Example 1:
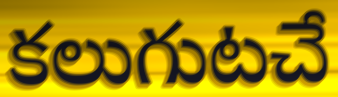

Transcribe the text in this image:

కలుగుటచే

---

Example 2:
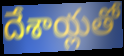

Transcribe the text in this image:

దేశాయ్లతో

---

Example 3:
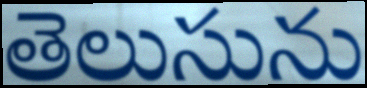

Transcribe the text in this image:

తెలుసును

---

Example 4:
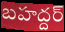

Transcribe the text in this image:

బహద్దర్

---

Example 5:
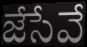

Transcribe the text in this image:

జేసేవే